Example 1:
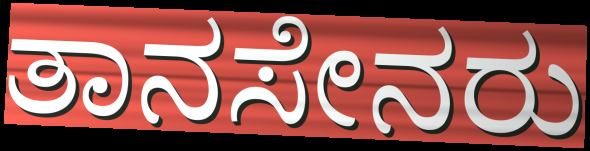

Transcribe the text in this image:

ತಾನಸೇನರು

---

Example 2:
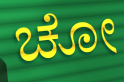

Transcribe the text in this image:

ಚೋ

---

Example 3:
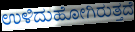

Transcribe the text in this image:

ಉಳಿದುಹೋಗಿರುತ್ತದೆ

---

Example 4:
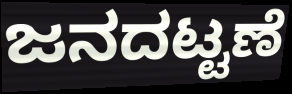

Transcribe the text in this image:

ಜನದಟ್ಟಣೆ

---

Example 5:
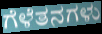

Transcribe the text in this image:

ಗೆಳೆತನಗಳು